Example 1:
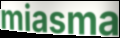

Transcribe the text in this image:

miasma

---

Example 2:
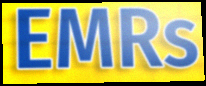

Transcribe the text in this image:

EMRs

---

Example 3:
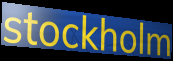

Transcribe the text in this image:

stockholm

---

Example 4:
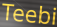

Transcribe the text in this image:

Teebi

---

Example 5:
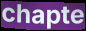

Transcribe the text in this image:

chapte